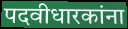
पदवीधारकांना